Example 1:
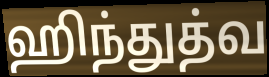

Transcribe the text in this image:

ஹிந்துத்வ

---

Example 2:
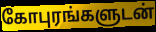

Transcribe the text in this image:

கோபுரங்களுடன்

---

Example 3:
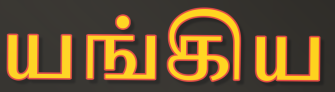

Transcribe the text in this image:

யங்கிய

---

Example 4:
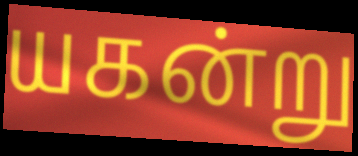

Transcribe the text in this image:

யகன்று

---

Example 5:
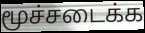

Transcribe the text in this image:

மூச்சடைக்க